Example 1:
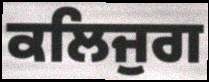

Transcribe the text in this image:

ਕਲਿਜੁਗ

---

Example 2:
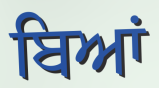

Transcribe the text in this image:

ਬਿਆਂ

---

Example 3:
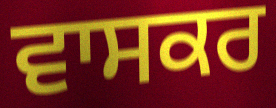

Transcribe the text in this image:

ਵਾਸਕਰ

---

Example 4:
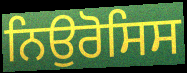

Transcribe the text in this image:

ਨਿਉਰੋਸਿਸ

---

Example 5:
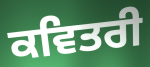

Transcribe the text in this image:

ਕਵਿਤਰੀ